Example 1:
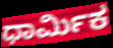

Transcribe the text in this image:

ಧಾರ್ಮಿಕ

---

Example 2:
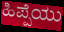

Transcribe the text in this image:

ಹಿಪ್ಪೆಯು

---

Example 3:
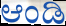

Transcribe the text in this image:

ಆಂಡಿ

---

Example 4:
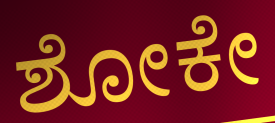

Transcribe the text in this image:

ಶೋಕೇ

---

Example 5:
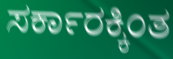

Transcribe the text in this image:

ಸರ್ಕಾರಕ್ಕಿಂತ